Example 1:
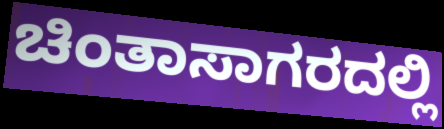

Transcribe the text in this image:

ಚಿಂತಾಸಾಗರದಲ್ಲಿ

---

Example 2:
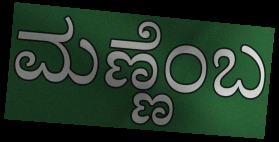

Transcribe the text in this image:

ಮಣ್ಣೆಂಬ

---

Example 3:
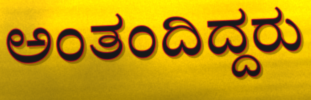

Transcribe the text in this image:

ಅಂತಂದಿದ್ದರು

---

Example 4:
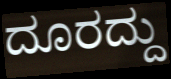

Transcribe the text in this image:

ದೂರದ್ದು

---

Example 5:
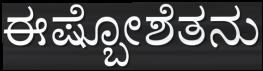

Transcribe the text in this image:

ಈಷ್ಬೋಶೆತನು